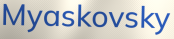
Myaskovsky